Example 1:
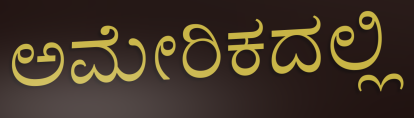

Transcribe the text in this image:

ಅಮೇರಿಕದಲ್ಲಿ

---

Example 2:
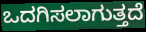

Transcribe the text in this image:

ಒದಗಿಸಲಾಗುತ್ತದೆ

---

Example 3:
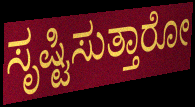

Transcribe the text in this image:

ಸೃಷ್ಟಿಸುತ್ತಾರೋ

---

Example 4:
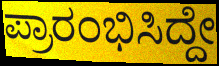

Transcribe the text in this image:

ಪ್ರಾರಂಭಿಸಿದ್ದೇ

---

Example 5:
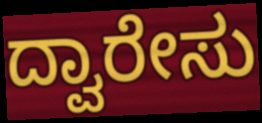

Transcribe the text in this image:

ದ್ವಾರೇಸು